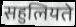
सहुलियते